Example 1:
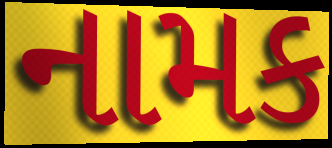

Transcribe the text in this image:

નામક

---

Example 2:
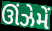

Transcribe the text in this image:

ઊંઝેમેં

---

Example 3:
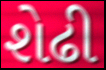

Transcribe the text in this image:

શેઢી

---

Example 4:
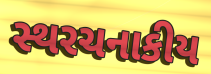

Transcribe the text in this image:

સ્થરચનાકીય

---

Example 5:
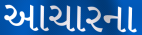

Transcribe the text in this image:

આચારના